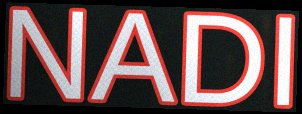
NADI